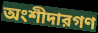
অংশীদারগণ